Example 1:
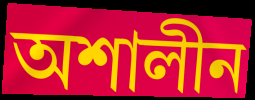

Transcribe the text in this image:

অশালীন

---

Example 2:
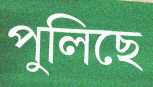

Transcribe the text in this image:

পুলিছে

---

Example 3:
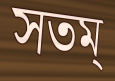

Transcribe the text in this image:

সতম্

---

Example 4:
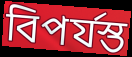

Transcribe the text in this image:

বিপৰ্যস্ত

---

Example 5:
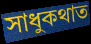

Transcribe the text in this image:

সাধুকথাত